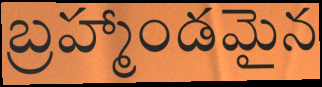
బ్రహ్మాండమైన